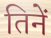
तिनें